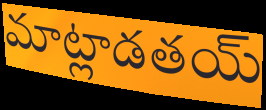
మాట్లాడతయ్